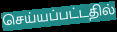
செய்யப்பட்டதில்